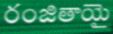
రంజితాయై